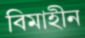
বিমাহীন